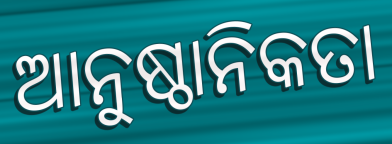
ଆନୁଷ୍ଠାନିକତା